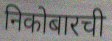
निकोबारची